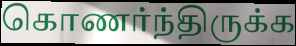
கொணர்ந்திருக்க